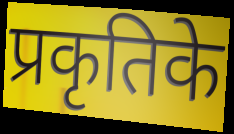
प्रकृतिके